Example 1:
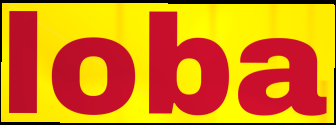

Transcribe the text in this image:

loba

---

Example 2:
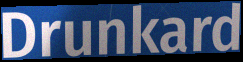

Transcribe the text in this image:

Drunkard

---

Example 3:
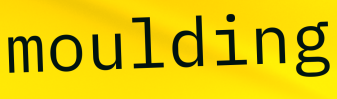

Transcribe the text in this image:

moulding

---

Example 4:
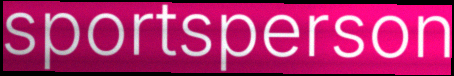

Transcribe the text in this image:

sportsperson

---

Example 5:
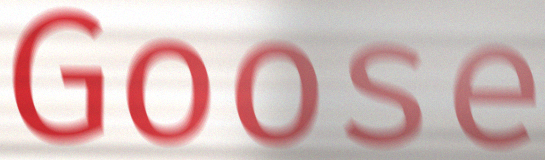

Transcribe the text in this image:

Goose